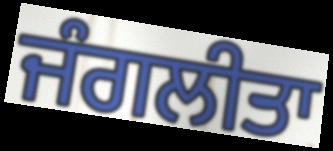
ਜੰਗਲੀਤਾ